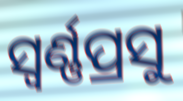
ସ୍ୱର୍ଣ୍ଣପ୍ରସୁ